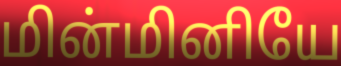
மின்மினியே